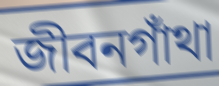
জীবনগাঁথা